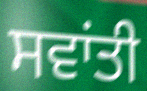
ਸਵਾਂਤੀ